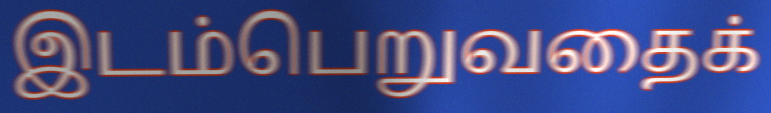
இடம்பெறுவதைக்